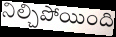
నిల్చిపోయింది